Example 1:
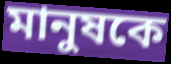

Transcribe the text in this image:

মানুষকে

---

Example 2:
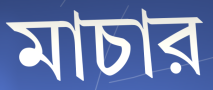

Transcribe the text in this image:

মাচার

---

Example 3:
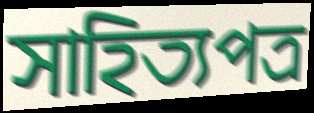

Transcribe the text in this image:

সাহিত্যপত্র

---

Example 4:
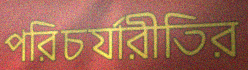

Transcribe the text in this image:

পরিচর্যারীতির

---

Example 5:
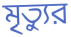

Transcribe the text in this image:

মৃত্যুর